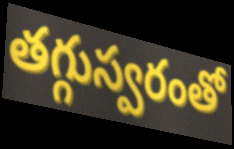
తగ్గుస్వరంతో